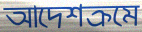
আদেশক্রমে